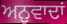
ਅਨੁਵਾਦਾਂ